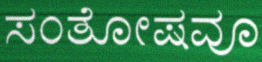
ಸಂತೋಷವೂ